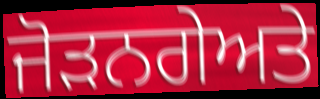
ਜੋੜਨਗੇਅਤੇ